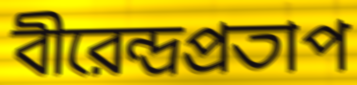
বীরেন্দ্রপ্রতাপ